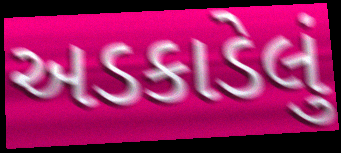
અડકાડેલું